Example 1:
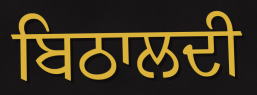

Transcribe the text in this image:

ਬਿਠਾਲਦੀ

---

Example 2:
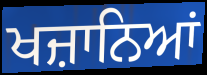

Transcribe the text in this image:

ਖਜ਼ਾਨਿਆਂ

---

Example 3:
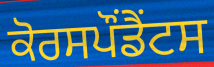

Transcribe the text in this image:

ਕੋਰਸਪੌਂਡੈਂਟਸ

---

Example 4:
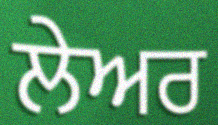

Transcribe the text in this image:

ਲੇਅਰ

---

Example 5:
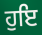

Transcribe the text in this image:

ਹੁਇ